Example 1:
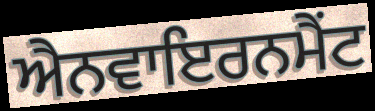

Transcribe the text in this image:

ਐਨਵਾਇਰਨਮੈਂਟ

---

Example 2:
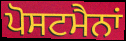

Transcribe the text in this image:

ਪੋਸਟਮੈਨਾਂ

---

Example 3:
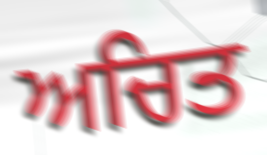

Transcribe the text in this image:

ਅਚਿਤ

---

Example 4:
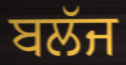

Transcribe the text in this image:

ਬਲੱਜ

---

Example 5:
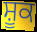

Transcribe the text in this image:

ਸ਼ੂਕ